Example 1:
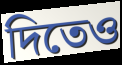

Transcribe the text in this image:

দিতেও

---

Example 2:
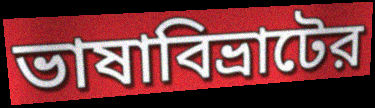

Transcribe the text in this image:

ভাষাবিভ্রাটের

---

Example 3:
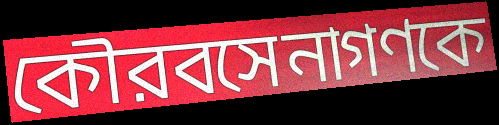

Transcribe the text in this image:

কৌরবসেনাগণকে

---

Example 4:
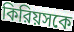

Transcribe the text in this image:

কিরিয়সকে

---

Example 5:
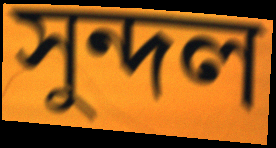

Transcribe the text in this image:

সুন্দল